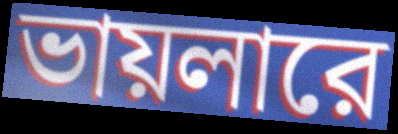
ভায়লারে